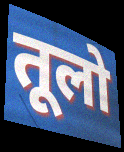
तूलो